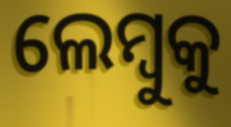
ଲେମ୍ବୁକୁ